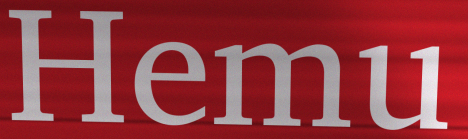
Hemu